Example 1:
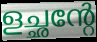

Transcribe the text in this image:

ളച്ഛന്റേ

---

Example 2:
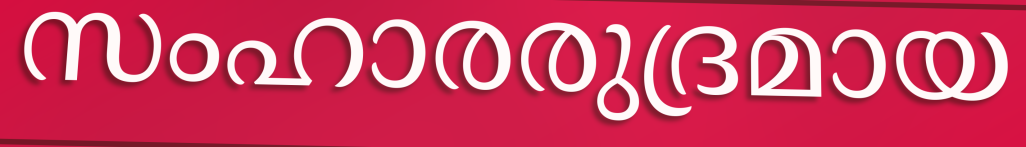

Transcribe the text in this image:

സംഹാരരുദ്രമായ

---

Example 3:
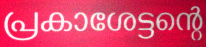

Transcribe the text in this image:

പ്രകാശേട്ടന്റെ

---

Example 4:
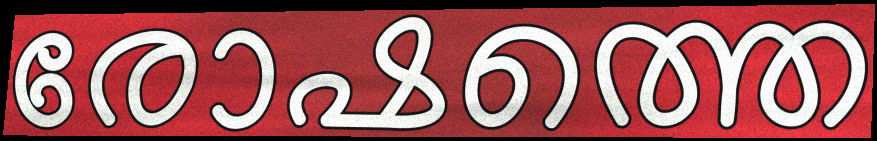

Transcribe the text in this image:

രോഷത്തെ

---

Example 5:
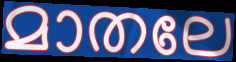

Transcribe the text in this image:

മാതലേ